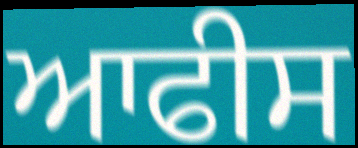
ਆਫੀਸ